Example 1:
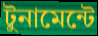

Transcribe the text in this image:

টুনামেন্টে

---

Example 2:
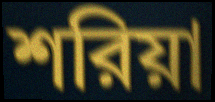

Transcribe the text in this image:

শরিয়া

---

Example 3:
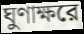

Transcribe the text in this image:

ঘুণাক্ষরে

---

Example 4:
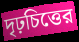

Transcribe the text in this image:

দৃঢ়চিত্তের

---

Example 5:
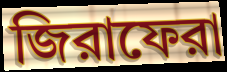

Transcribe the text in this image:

জিরাফেরা